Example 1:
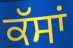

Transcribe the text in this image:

ਕੱਸਾਂ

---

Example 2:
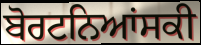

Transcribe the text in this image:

ਬੋਰਟਨਿਆਂਸਕੀ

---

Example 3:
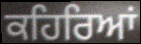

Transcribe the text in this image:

ਕਹਿਰਿਆਂ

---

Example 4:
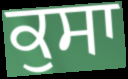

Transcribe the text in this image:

ਕੁਸਾ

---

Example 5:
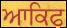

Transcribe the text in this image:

ਆਕਿਫ